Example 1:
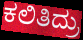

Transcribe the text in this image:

ಕಲಿತಿದ್ರು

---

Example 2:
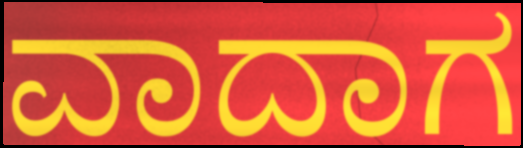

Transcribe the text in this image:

ವಾದಾಗ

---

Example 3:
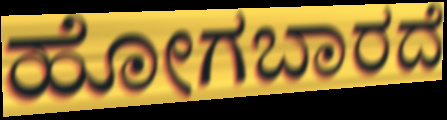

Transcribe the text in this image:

ಹೋಗಬಾರದೆ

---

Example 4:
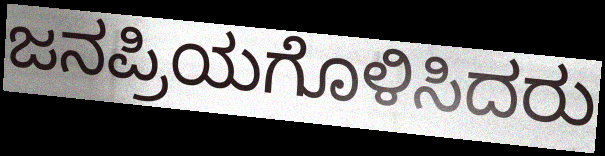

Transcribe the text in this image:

ಜನಪ್ರಿಯಗೊಳಿಸಿದರು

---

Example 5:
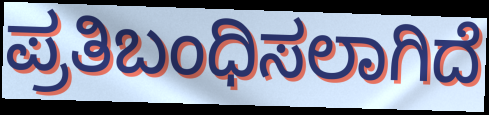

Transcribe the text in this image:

ಪ್ರತಿಬಂಧಿಸಲಾಗಿದೆ